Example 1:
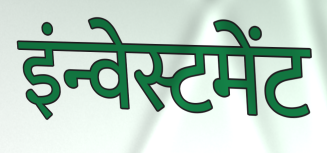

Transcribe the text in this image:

इंन्वेस्टमेंट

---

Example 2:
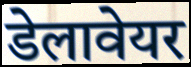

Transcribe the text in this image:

डेलावेयर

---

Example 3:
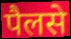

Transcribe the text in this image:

पैलसे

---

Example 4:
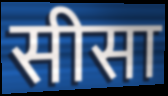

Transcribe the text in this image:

सीसा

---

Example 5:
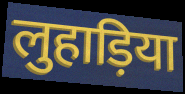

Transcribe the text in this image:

लुहाड़िया